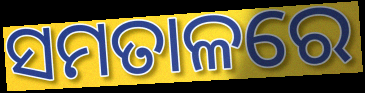
ସମତାଳରେ